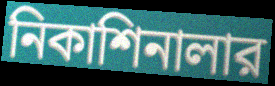
নিকাশিনালার